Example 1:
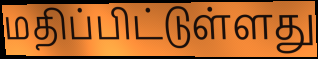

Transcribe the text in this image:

மதிப்பிட்டுள்ளது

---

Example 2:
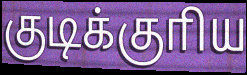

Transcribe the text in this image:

குடிக்குரிய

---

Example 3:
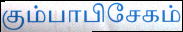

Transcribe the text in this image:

கும்பாபிசேகம்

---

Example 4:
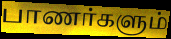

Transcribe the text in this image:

பாணர்களும்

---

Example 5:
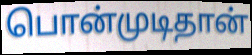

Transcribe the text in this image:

பொன்முடிதான்